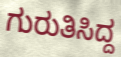
ಗುರುತಿಸಿದ್ದ